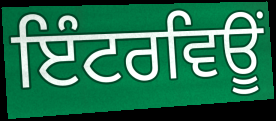
ਇੰਟਰਵਿਊਂ